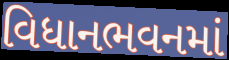
વિધાનભવનમાં